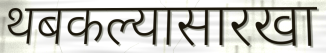
थबकल्यासारखा